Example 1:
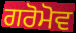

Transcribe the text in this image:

ਗਰੋਮੋਵ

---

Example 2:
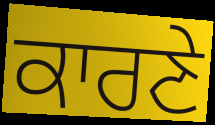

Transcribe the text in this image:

ਕਾਰਣੇ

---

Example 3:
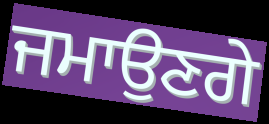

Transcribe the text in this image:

ਜਮਾਉਣਗੇ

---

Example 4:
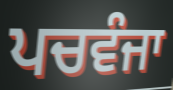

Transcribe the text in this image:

ਪਚਵੰਜਾ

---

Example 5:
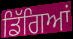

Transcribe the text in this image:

ਡਿੱਗਿਆਂ